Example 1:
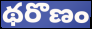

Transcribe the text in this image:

థరొణం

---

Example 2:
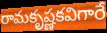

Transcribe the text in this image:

రామకృష్ణకవిగారే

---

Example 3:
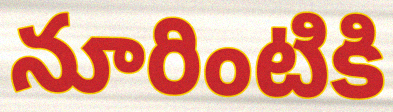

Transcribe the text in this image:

నూరింటికి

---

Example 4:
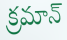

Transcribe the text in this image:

క్రమాన్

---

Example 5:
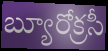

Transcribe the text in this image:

బ్యూరోక్రసీ